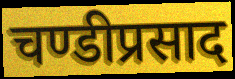
चण्डीप्रसाद